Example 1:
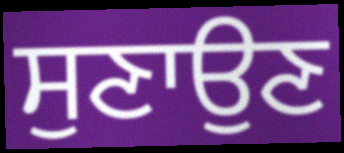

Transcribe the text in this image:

ਸੁਣਾਉਣ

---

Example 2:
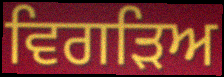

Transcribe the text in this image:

ਵਿਗੜਿਅ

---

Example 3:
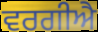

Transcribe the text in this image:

ਵਰਗੀਐ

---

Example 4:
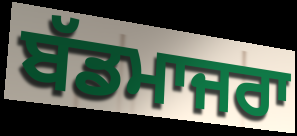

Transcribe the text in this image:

ਬੱਡਮਾਜਰਾ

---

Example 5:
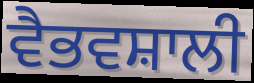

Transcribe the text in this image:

ਵੈਭਵਸ਼ਾਲੀ